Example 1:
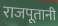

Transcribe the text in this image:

राजपूतानी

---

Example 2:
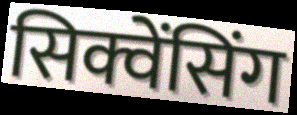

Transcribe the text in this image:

सिक्‍वेंसिंग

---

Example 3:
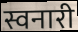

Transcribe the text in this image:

स्वनारी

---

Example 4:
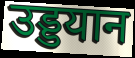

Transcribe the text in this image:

उड्डयान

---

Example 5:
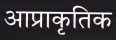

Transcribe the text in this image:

आप्राकृतिक